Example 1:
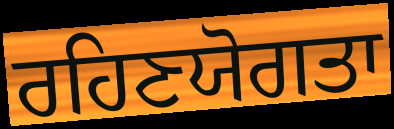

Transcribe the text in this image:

ਰਹਿਣਯੋਗਤਾ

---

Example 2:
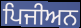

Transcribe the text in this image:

ਪਿਜੀਅਨ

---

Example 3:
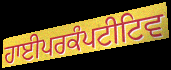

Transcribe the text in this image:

ਹਾਈਪਰਕੰਪਟੀਟਿਵ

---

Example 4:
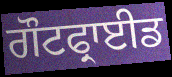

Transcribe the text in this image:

ਗੌਟਫ੍ਰਾਈਡ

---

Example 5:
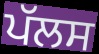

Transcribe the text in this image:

ਪੱਲਸ